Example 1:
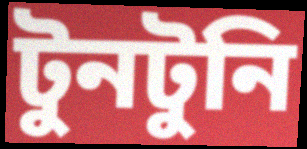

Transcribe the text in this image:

টুনটুনি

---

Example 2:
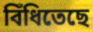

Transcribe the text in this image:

বিঁধিতেছে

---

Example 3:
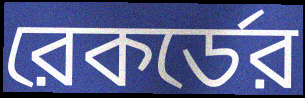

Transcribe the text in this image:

রেকর্ডের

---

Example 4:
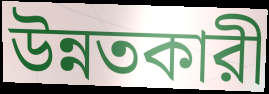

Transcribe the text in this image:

উন্নতকারী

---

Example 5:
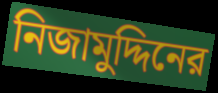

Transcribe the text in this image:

নিজামুদ্দিনের